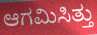
ಆಗಮಿಸಿತ್ತು